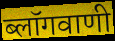
ब्लॉगवाणी